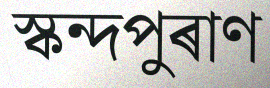
স্কন্দপুৰাণ